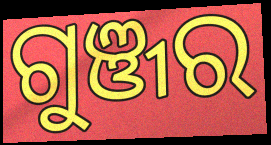
ଗୁଞ୍ଜର